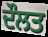
ਦੌਲਤ